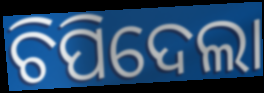
ଚିପିଦେଲା